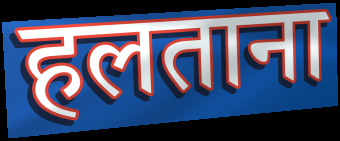
हलताना